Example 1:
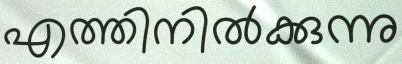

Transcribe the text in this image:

എത്തിനിൽക്കുന്നു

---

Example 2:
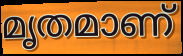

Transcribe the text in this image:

മൃതമാണ്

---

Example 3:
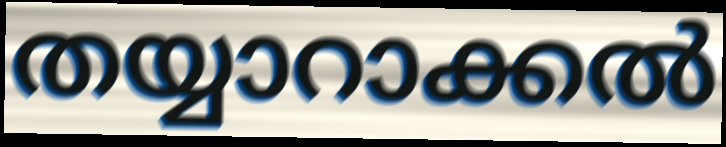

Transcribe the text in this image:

തയ്യാറാക്കൽ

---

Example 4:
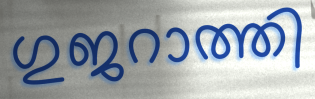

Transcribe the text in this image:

ഗുജറാത്തി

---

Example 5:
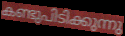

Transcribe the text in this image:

കണ്ടുപിടിക്കുന്നു